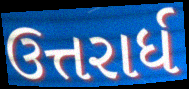
ઉત્તરાર્ધ